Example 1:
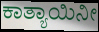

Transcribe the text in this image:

ಕಾತ್ಯಾಯಿನೀ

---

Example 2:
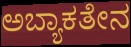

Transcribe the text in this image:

ಅಬ್ಯಾಕತೇನ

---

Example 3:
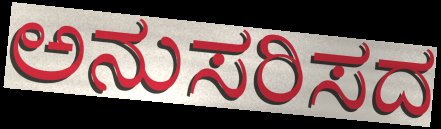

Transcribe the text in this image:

ಅನುಸರಿಸದ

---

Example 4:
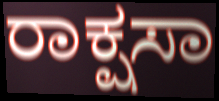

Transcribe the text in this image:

ರಾಕ್ಷಸಾ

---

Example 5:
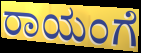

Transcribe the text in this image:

ರಾಯಂಗೆ